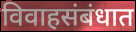
विवाहसंबंधात